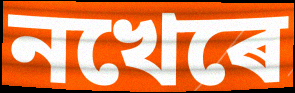
নখেৰে